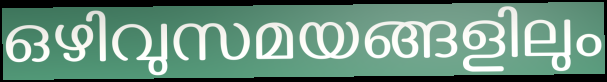
ഒഴിവുസമയങ്ങളിലും